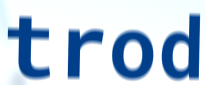
trod